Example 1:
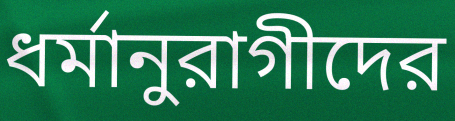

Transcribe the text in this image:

ধর্মানুরাগীদের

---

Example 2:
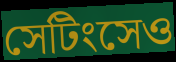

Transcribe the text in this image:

সেটিংসেও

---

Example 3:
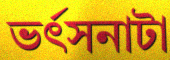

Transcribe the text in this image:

ভর্ৎসনাটা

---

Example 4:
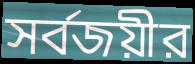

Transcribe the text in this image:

সর্বজয়ীর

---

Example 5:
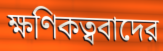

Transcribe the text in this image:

ক্ষণিকত্ববাদের